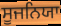
ਸੂਜਨਿਯਾ